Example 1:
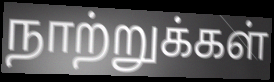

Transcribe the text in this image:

நாற்றுக்கள்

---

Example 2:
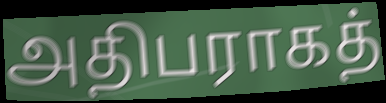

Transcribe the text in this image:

அதிபராகத்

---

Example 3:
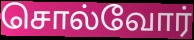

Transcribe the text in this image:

சொல்வோர்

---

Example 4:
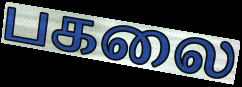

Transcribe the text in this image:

பகலை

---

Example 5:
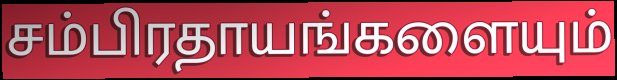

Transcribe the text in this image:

சம்பிரதாயங்களையும்